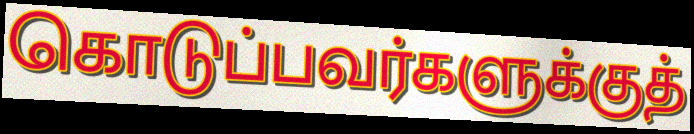
கொடுப்பவர்களுக்குத்